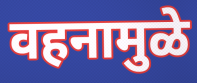
वहनामुळे